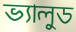
ভ্যালুড